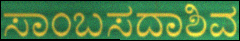
ಸಾಂಬಸದಾಶಿವ